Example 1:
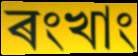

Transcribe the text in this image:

ৰংখাং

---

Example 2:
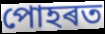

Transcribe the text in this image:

পোহৰত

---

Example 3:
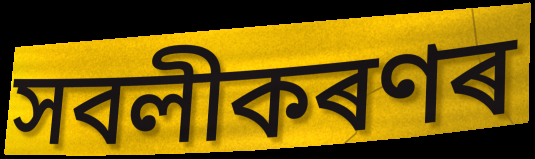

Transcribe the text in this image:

সবলীকৰণৰ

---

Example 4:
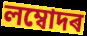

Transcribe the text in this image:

লম্বোদৰ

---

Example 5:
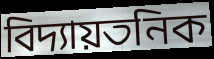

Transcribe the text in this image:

বিদ্যায়তনিক